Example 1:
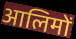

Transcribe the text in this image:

आलिमों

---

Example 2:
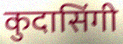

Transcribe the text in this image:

कुदासिंगी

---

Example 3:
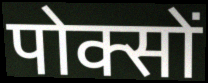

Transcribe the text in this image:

पोक्सों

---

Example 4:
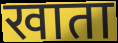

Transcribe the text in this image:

खाता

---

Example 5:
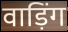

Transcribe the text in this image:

वाड़िंग